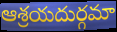
ఆశ్రయదుర్గమా